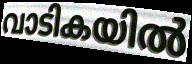
വാടികയിൽ